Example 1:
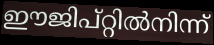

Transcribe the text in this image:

ഈജിപ്റ്റിൽനിന്ന്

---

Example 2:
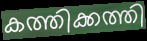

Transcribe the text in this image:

കത്തിക്കത്തി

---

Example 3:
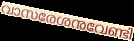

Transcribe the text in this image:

വാസരേശനുവേണ്ടി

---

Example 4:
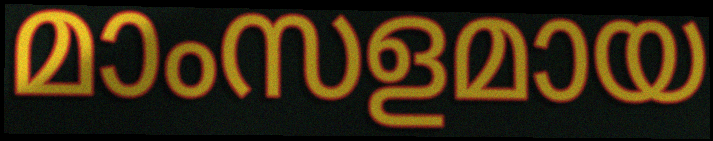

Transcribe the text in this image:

മാംസളമായ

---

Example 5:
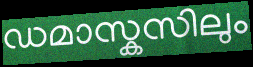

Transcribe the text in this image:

ഡമാസ്കസിലും